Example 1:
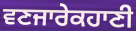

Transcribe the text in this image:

ਵਣਜਾਰੇਕਹਾਣੀ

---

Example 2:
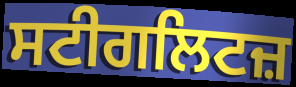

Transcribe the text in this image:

ਸਟੀਗਲਿਟਜ਼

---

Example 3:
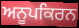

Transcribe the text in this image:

ਅਨੂਪਕਿਰਨ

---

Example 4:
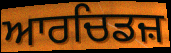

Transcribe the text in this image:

ਆਰਚਿਡਜ਼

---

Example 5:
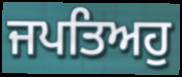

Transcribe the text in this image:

ਜਪਤਿਅਹੁ